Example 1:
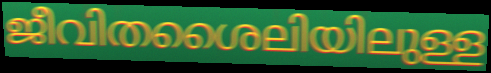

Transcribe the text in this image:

ജീവിതശൈലിയിലുള്ള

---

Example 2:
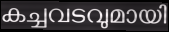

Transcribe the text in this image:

കച്ചവടവുമായി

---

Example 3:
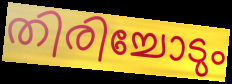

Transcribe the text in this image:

തിരിച്ചോടും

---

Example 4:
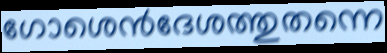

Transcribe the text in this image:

ഗോശെൻദേശത്തുതന്നെ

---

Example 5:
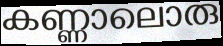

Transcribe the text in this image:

കണ്ണാലൊരു